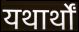
यथार्थों